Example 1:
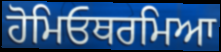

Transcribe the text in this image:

ਹੋਮਿਓਥਰਮਿਆ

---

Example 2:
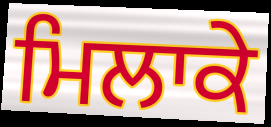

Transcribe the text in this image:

ਮਿਲਾਕੇ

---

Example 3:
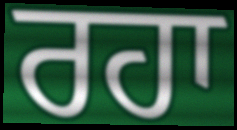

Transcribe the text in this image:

ਰਹਾ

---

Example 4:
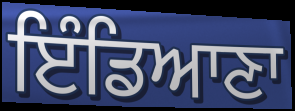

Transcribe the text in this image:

ਇੰਡਿਆਣਾ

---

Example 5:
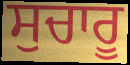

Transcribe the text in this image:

ਸੁਚਾਰੂ